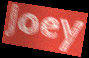
Joey